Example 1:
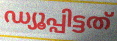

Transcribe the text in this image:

ഡ്യൂപ്പിട്ടത്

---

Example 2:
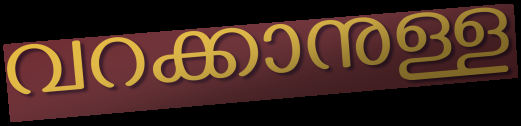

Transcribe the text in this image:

വറക്കാനുള്ള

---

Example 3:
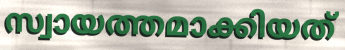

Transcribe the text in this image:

സ്വായത്തമാക്കിയത്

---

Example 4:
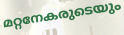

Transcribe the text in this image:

മറ്റനേകരുടെയും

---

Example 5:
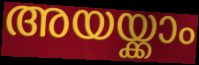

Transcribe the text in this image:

അയയ്ക്കാം